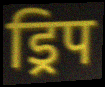
ड्रिप